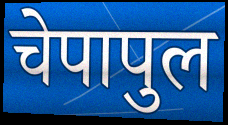
चेपापुल